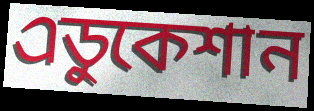
এডুকেশান